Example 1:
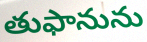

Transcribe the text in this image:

తుఫానును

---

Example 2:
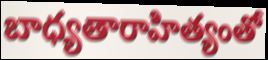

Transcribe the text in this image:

బాధ్యతారాహిత్యంతో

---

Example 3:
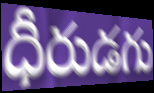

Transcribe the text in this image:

ధీరుడగు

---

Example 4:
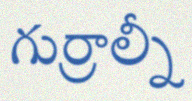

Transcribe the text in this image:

గుర్రాల్నీ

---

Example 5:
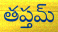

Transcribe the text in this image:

తప్తమ్